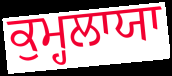
ਕੁਮ੍ਹਲਾਯਾ